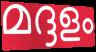
മദ്ദളം